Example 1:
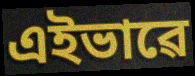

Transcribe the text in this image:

এইভাৱে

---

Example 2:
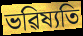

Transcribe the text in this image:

ভৱিষ্যতি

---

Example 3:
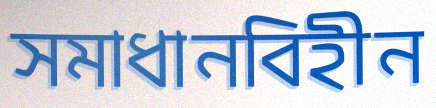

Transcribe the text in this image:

সমাধানবিহীন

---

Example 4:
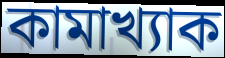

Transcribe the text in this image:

কামাখ্যাক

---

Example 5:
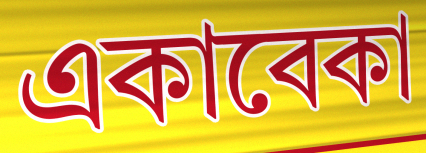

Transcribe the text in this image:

একাবেকা